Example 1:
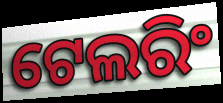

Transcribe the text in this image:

ଟେଲରିଂ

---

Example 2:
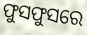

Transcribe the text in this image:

ଫୁସଫୁସରେ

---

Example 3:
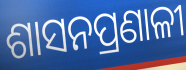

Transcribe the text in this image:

ଶାସନପ୍ରଣାଳୀ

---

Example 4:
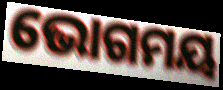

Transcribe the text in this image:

ଭୋଗମୟ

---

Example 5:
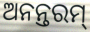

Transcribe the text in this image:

ଅନନ୍ତରମ୍